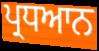
ਪ੍ਰਧਆਨ